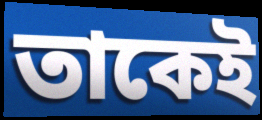
তাকেই